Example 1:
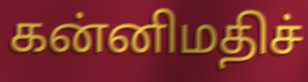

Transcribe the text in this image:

கன்னிமதிச்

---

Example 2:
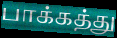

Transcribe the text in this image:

பாக்கத்து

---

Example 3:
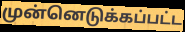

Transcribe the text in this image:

முன்னெடுக்கப்பட்ட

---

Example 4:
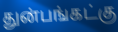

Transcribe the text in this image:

துன்பங்கட்கு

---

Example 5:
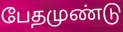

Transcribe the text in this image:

பேதமுண்டு